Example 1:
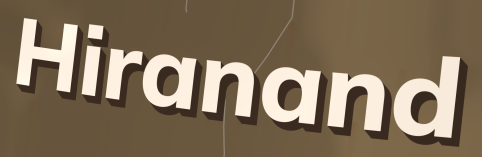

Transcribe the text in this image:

Hiranand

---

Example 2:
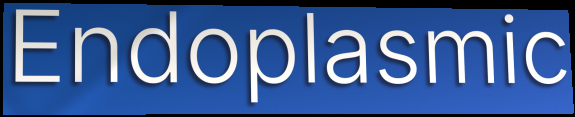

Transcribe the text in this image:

Endoplasmic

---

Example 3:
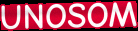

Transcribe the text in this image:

UNOSOM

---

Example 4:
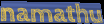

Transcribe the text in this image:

namathu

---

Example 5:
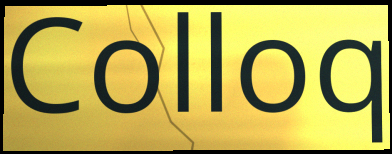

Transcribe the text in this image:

Colloq